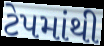
ટેપમાંથી